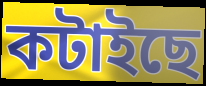
কটাইছে